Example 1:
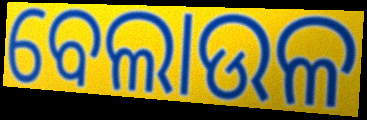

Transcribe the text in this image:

ବେଲାଉଳ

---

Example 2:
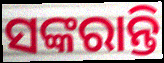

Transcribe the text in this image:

ସଙ୍କରାନ୍ତି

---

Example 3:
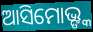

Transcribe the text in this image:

ଆସିମୋଭ୍ଙ୍କ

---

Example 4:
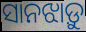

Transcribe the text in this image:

ସାନଝାଡ଼ୁ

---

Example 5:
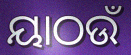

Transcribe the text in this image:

ୟାଠଉଁ